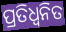
ପ୍ରତିଧ୍ଵନିତ